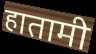
हातामी